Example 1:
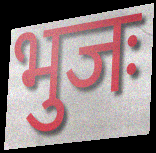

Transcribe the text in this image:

भुजः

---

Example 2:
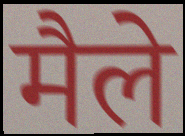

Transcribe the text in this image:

मैले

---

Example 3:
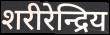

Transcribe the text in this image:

शरीरेन्द्रिय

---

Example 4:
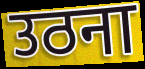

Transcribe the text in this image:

उठना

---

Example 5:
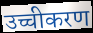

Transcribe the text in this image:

उच्चीकरण